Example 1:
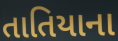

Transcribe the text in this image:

તાતિયાના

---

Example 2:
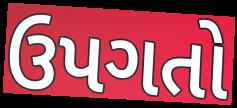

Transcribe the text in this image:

ઉપગતો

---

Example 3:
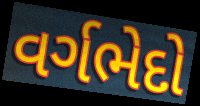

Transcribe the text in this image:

વર્ગભેદો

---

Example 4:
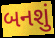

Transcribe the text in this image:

બનશું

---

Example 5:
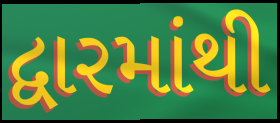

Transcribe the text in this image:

દ્વારમાંથી